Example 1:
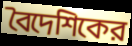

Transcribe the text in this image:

বৈদেশিকের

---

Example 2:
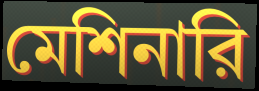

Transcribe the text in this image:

মেশিনারি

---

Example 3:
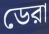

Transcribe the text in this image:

ডেরা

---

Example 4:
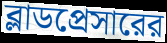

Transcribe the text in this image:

ব্লাডপ্রেসারের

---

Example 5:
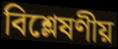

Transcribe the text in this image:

বিশ্লেষণীয়